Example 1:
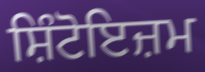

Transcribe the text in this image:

ਸ਼ਿੰਟੋਇਜ਼ਮ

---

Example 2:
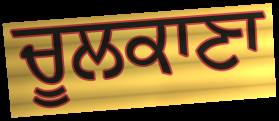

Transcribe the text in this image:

ਚੂਲਕਾਣਾ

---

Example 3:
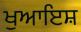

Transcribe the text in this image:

ਖੁਆਇਸ਼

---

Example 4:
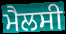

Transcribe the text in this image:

ਮੈਲਸੀ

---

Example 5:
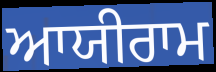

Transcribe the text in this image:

ਆਯੀਰਾਮ